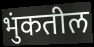
भुंकतील